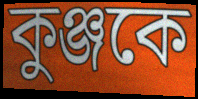
কুঞ্জকে